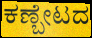
ಕಣ್ಬೇಟದ